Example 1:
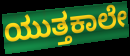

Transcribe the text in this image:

ಯುತ್ತಕಾಲೇ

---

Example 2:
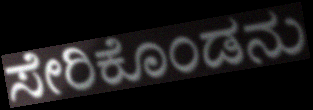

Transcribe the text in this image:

ಸೇರಿಕೊಂಡನು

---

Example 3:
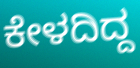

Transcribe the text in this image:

ಕೇಳದಿದ್ದ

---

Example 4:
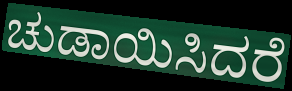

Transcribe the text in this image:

ಚುಡಾಯಿಸಿದರೆ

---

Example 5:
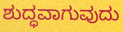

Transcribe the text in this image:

ಶುದ್ಧವಾಗುವುದು